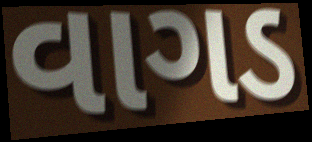
વાગડ